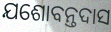
ଯଶୋବନ୍ତଦାସ